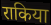
राकिया